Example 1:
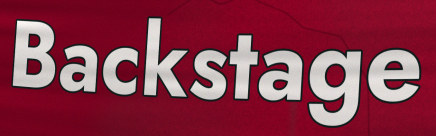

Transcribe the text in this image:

Backstage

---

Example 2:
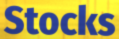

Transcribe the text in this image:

Stocks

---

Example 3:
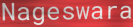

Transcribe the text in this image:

Nageswara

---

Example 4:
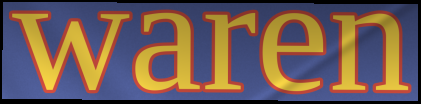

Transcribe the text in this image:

waren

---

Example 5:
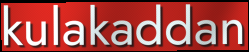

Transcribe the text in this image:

kulakaddan